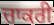
ਚਾਕਰੀ